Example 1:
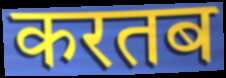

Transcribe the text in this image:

करतब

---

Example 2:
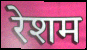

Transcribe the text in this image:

रेशम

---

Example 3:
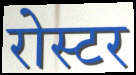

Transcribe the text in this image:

रोस्टर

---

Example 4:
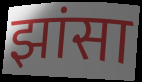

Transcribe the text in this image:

झांसा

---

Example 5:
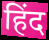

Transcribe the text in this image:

हिंद